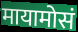
मायामोसं